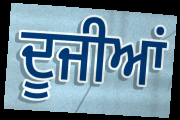
ਦੂਜੀਆਂ